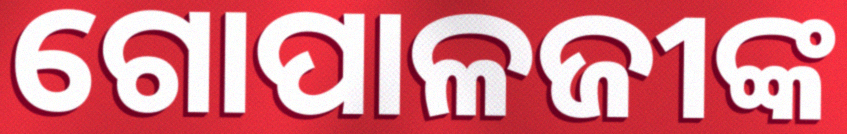
ଗୋପାଳଜୀଙ୍କ